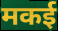
मकई